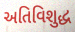
અતિવિશુદ્ધ